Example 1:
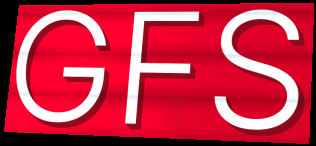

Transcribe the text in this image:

GFS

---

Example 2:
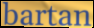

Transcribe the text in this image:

bartan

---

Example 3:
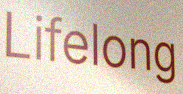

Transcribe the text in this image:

Lifelong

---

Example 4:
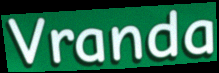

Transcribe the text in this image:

Vranda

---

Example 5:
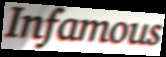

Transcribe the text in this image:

Infamous